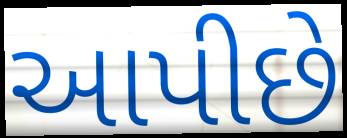
આપીછે